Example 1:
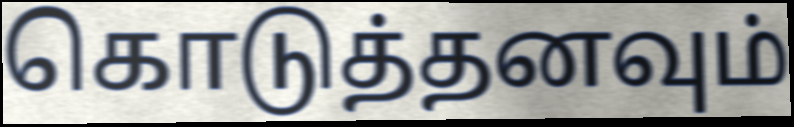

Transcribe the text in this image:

கொடுத்தனவும்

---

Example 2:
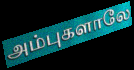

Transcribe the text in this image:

அம்புகளாலே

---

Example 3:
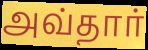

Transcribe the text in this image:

அவ்தார்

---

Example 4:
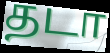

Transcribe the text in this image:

தடா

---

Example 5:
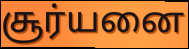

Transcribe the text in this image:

சூர்யனை